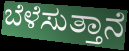
ಬೆಳೆಸುತ್ತಾನೆ